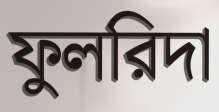
ফুলরিদা